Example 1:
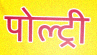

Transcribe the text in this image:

पोल्ट्री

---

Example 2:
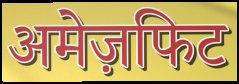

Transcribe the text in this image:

अमेज़फिट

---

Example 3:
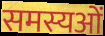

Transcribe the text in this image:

समस्यओं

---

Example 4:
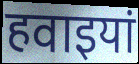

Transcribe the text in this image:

हवाइयां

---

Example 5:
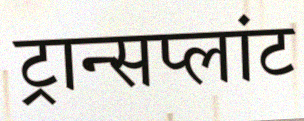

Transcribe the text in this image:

ट्रान्सप्लांट